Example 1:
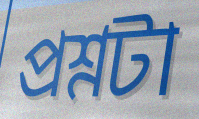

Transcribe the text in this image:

প্রশ্নটা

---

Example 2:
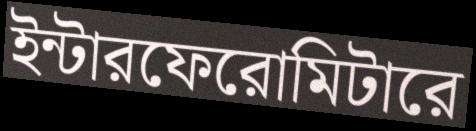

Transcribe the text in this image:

ইন্টারফেরোমিটারে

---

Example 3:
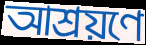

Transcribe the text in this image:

আশ্রয়ণে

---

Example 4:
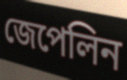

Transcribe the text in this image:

জেপেলিন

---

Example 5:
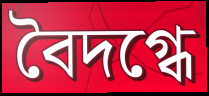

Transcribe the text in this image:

বৈদগ্ধে